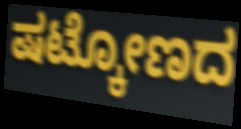
ಷಟ್ಕೋಣದ